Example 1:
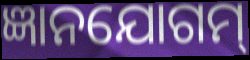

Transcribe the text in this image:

ଜ୍ଞାନଯୋଗମ୍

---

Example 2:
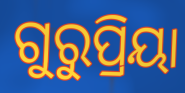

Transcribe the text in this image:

ଗୁରୁପ୍ରିୟା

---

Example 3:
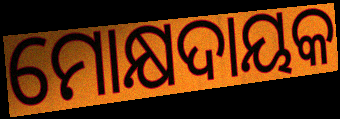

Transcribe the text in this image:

ମୋକ୍ଷଦାୟକ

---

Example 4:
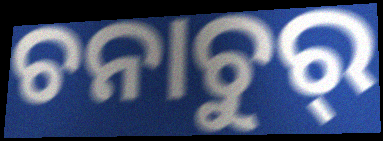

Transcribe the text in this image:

ଚନାଚୁର୍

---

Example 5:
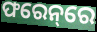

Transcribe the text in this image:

ଫରେନ୍‌ରେ